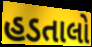
હડતાલો